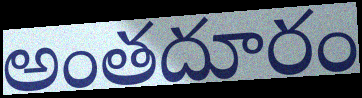
అంతదూరం